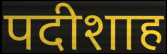
पदीशाह